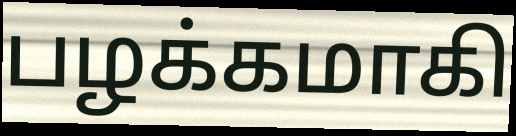
பழக்கமாகி